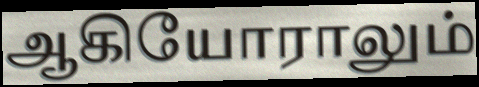
ஆகியோராலும்